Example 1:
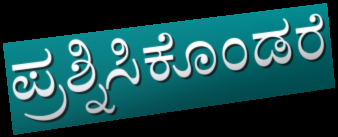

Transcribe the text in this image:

ಪ್ರಶ್ನಿಸಿಕೊಂಡರೆ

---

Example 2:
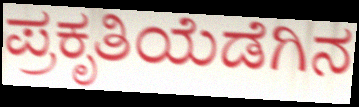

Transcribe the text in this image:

ಪ್ರಕೃತಿಯೆಡೆಗಿನ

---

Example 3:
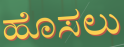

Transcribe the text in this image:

ಹೊಸಲು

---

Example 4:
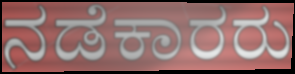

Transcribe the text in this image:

ನಡೆಕಾರರು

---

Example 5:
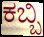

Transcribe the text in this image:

ಕಬ್ಬಿ